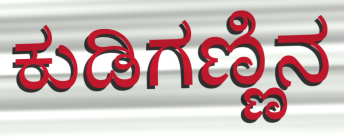
ಕುಡಿಗಣ್ಣಿನ